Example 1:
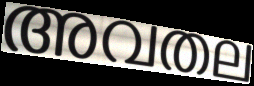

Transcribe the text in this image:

അവതല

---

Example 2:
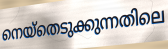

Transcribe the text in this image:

നെയ്തെടുക്കുന്നതിലെ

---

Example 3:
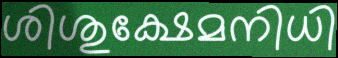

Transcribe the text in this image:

ശിശുക്ഷേമനിധി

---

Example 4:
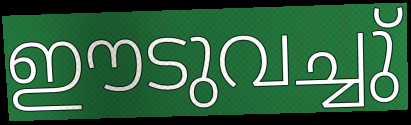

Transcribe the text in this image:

ഈടുവച്ചു്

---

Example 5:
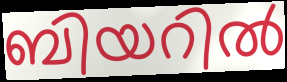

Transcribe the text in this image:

ബിയറിൽ